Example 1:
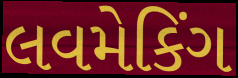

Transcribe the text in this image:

લવમેકિંગ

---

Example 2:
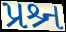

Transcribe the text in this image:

પ્રશ્ર્ન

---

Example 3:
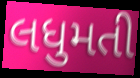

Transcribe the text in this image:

લધુમતી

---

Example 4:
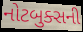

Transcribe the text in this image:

નોટબુક્સની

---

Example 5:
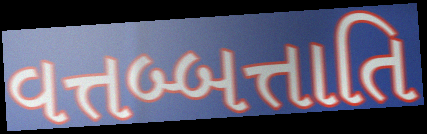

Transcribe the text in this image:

વત્તબ્બત્તાતિ